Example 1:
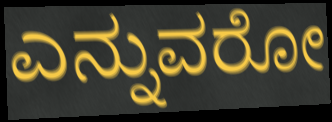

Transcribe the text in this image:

ಎನ್ನುವರೋ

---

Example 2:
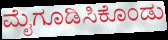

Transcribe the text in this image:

ಮೈಗೂಡಿಸಿಕೊಂಡು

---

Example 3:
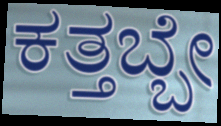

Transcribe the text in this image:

ಕತ್ತಬ್ಬೇ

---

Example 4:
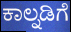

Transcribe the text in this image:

ಕಾಲ್ನಡಿಗೆ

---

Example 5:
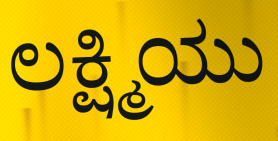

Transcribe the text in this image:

ಲಕ್ಷ್ಮಿಯು